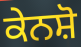
ਕੇਨਸ਼ੋ